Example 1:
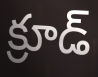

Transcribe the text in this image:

క్రూడ్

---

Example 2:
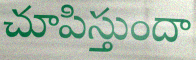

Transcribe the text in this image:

చూపిస్తుందా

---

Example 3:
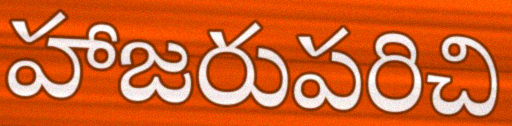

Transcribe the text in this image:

హాజరుపరిచి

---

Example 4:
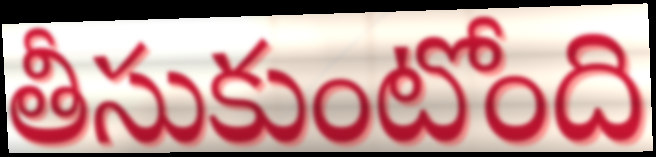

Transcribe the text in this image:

తీసుకుంటోంది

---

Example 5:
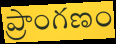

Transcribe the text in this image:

ప్రాంగణం